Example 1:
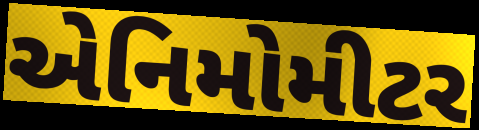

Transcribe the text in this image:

એનિમોમીટર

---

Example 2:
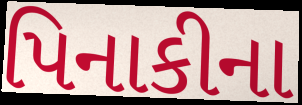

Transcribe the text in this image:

પિનાકીના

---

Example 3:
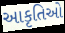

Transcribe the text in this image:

આકૃતિઓ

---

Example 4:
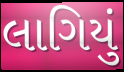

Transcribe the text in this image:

લાગિયું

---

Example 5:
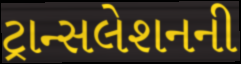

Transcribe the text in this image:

ટ્રાન્સલેશનની